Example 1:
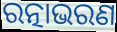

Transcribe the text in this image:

ରତ୍ନାଭରଣ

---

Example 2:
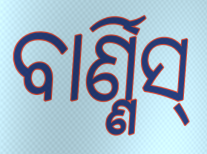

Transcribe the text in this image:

ବାର୍ଣ୍ଣିସ୍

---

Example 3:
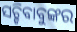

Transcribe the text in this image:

ସଚ୍ଚିବାବୁଙ୍କର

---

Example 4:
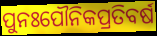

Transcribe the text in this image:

ପୁନଃପୌନିକପ୍ରତିବର୍ଷ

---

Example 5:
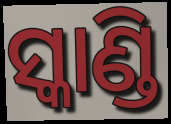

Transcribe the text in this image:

ସ୍କାଣ୍ଡି